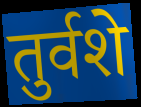
तुर्वशे